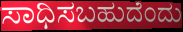
ಸಾಧಿಸಬಹುದೆಂದು